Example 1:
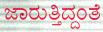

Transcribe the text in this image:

ಜಾರುತ್ತಿದ್ದಂತೆ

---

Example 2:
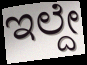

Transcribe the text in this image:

ಇಲ್ದೇ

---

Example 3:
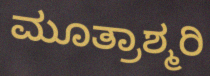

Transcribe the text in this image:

ಮೂತ್ರಾಶ್ಮರಿ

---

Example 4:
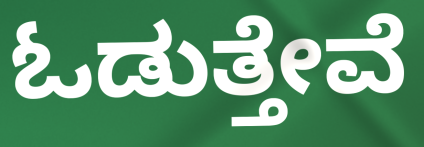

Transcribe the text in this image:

ಓಡುತ್ತೇವೆ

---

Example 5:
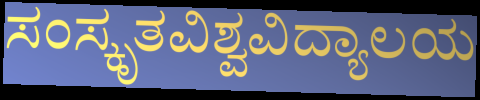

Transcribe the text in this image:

ಸಂಸ್ಕೃತವಿಶ್ವವಿದ್ಯಾಲಯ